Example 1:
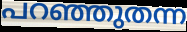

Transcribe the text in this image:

പറഞ്ഞുതന്ന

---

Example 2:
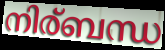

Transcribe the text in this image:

നിര്ബന്ധ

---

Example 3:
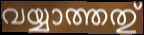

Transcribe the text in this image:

വയ്യാത്തതു്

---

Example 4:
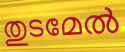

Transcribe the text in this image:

തുടമേൽ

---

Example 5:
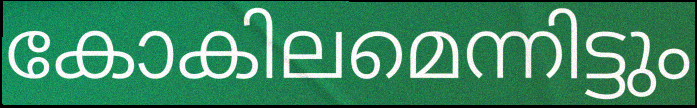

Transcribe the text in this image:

കോകിലമെന്നിട്ടും